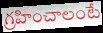
గ్రహించాలంటే